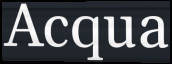
Acqua